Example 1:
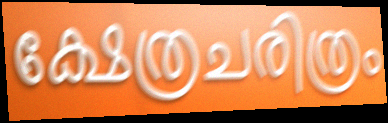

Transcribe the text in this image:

ക്ഷേത്രചരിത്രം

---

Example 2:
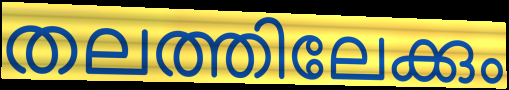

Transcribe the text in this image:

തലത്തിലേക്കും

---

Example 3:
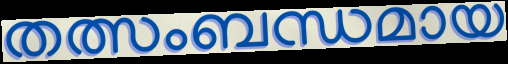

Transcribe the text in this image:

തത്സംബന്ധമായ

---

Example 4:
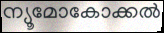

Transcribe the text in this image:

ന്യൂമോകോക്കൽ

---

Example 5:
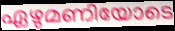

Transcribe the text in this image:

ഏഴുമണിയോടെ